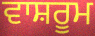
ਵਾਸ਼ਰੂਮ